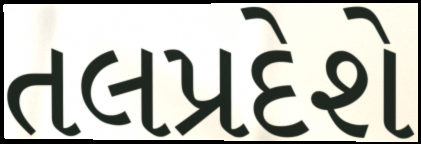
તલપ્રદેશે